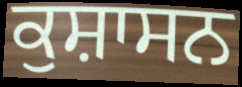
ਕੁਸ਼ਾਸਨ